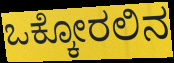
ಒಕ್ಕೋರಲಿನ